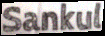
Sankul